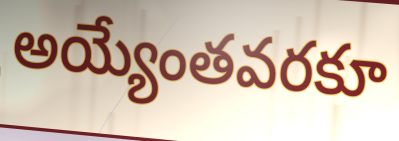
అయ్యేంతవరకూ